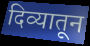
दिव्यातून